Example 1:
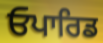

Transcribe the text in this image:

ਓਪਾਰਿਡ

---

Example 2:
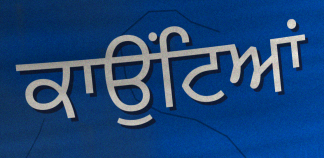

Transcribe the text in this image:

ਕਾਉਂਟਿਆਂ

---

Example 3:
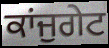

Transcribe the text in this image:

ਕਾਂਜੁਗੇਟ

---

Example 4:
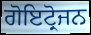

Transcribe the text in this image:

ਗੋਇਟ੍ਰੋਜਨ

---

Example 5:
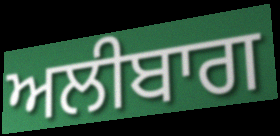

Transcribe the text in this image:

ਅਲੀਬਾਗ